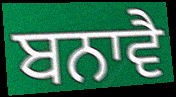
ਬਨਾਵੈ